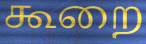
கூறை